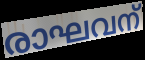
രാഘവന്